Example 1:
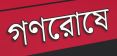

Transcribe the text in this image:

গণরোষে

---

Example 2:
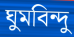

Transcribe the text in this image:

ঘুমবিন্দু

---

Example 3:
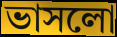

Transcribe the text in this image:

ভাসলো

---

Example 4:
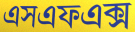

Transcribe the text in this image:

এসএফএক্স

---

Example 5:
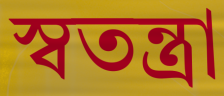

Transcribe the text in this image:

স্বতন্ত্রা